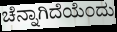
ಚೆನ್ನಾಗಿದೆಯೆಂದು